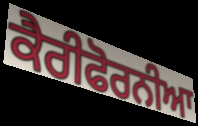
ਕੈਰੀਫੋਰਨੀਆ